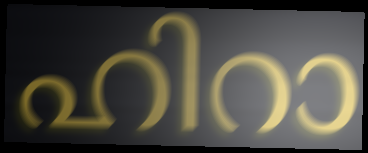
ഹിറാ